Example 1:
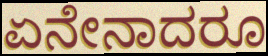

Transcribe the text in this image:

ಏನೇನಾದರೂ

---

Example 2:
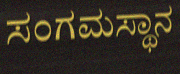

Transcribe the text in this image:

ಸಂಗಮಸ್ಥಾನ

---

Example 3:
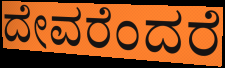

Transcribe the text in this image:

ದೇವರೆಂದರೆ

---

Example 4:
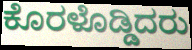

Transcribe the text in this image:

ಕೊರಳೊಡ್ಡಿದರು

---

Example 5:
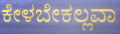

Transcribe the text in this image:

ಕೇಳಬೇಕಲ್ಲವಾ